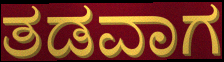
ತಡವಾಗ